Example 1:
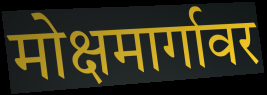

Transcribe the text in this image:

मोक्षमार्गावर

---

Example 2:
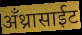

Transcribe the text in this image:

अँथ्रासाईट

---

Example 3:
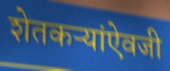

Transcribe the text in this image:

शेतकऱ्यांऐवजी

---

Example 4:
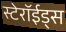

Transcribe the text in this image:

स्टेरॉईड्स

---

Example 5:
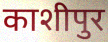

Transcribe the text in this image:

काशीपुर